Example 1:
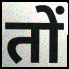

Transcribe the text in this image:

तों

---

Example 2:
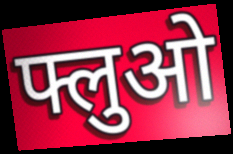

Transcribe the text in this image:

फ्लुओ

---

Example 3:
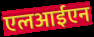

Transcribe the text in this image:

एलआईएन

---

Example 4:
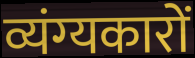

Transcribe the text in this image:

व्‍यंग्‍यकारों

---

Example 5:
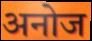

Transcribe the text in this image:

अनोज